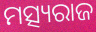
ମତ୍ସ୍ୟରାଜ